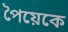
পৈয়েকে